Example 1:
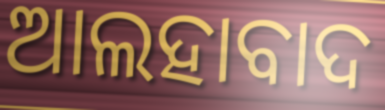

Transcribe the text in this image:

ଆଲହାବାଦ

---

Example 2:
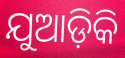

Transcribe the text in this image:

ଯୁଆଡ଼ିକି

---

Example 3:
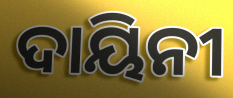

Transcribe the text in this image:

ଦାୟିନୀ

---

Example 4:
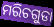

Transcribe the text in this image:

ମରିଚଗୁଡା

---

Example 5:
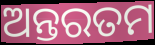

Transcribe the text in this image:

ଅନ୍ତରତମ